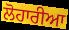
ਲੋਹਾਰੀਆ